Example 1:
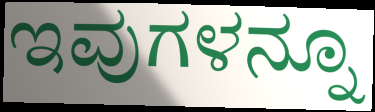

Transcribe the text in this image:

ಇವುಗಳನ್ನೂ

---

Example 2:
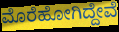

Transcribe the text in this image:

ಮೊರೆಹೋಗಿದ್ದೇವೆ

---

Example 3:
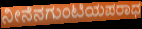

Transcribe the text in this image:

ನೀನೆನಗುಂಟೆಯಪರಾಧ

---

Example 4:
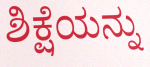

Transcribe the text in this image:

ಶಿಕ್ಷೆಯನ್ನು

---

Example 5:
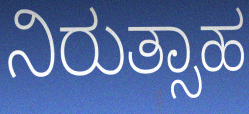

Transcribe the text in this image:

ನಿರುತ್ಸಾಹ